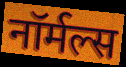
नॉर्मल्स